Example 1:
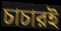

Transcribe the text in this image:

চাচারই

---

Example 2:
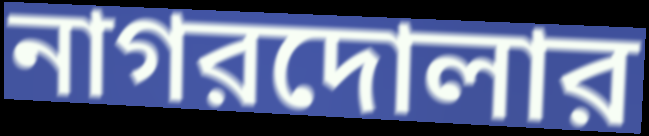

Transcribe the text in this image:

নাগরদোলার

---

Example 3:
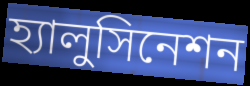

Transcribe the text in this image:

হ্যালুসিনেশন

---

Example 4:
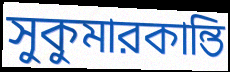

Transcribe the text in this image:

সুকুমারকান্তি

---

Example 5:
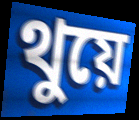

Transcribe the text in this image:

থুয়ে